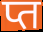
प्त